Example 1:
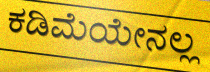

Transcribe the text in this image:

ಕಡಿಮೆಯೇನಲ್ಲ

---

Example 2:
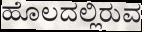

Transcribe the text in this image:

ಹೊಲದಲ್ಲಿರುವ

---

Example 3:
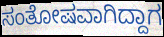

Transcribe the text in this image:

ಸಂತೋಷವಾಗಿದ್ದಾಗ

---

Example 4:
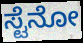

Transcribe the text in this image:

ಸ್ಟೆನೋ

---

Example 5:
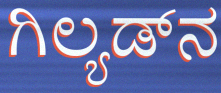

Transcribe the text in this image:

ಗಿಲ್ಯಡ್‌ನ